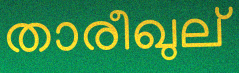
താരീഖുല്